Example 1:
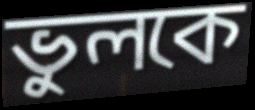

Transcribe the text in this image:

ভুলকে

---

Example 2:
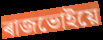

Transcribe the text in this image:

ৰাজভোইয়ে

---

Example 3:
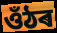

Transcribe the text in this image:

ওঁঠৰ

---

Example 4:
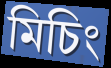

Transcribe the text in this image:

মিচিং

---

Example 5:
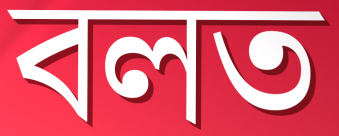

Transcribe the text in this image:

বলত